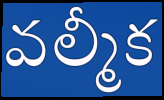
వల్మీక